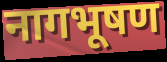
नागभूषण